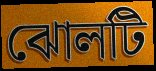
ঝোলটি